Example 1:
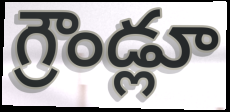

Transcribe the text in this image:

గ్రౌండ్లూ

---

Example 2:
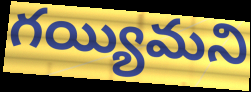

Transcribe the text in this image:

గయ్యిమని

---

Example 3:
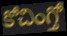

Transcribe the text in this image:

కోచింగ్తో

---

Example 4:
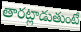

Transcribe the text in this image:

తారట్లాడుతుంటే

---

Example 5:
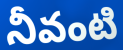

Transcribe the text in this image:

నీవంటి